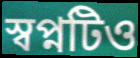
স্বপ্নটিও